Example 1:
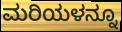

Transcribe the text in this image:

ಮರಿಯಳನ್ನೂ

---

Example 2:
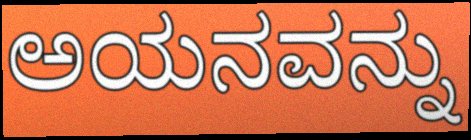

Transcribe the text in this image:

ಅಯನವನ್ನು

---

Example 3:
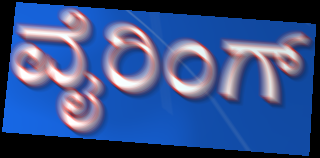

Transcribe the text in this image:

ವೈರಿಂಗ್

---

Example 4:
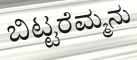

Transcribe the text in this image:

ಬಿಟ್ಟರೆಮ್ಮನು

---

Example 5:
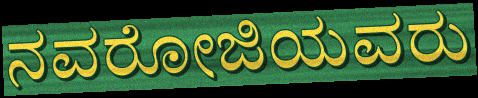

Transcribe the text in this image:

ನವರೋಜಿಯವರು